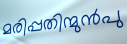
മരിപ്പതിന്മുൻപു